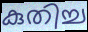
കുതിച്ച